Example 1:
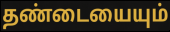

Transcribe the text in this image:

தண்டையையும்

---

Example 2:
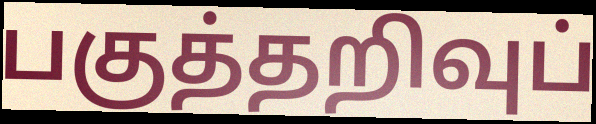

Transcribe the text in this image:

பகுத்தறிவுப்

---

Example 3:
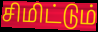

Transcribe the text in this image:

சிமிட்டும்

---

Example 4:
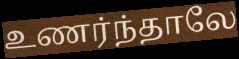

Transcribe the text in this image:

உணர்ந்தாலே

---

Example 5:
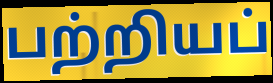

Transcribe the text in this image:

பற்றியப்